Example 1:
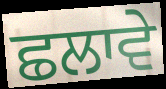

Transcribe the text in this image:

ਛਲਾਵੇ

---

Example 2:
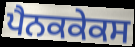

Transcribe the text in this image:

ਪੈਨਕਕੇਕਸ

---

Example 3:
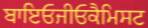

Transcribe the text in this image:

ਬਾਇਓਜੀਓਕੈਮਿਸਟ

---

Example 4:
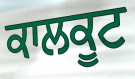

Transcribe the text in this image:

ਕਾਲਕੂਟ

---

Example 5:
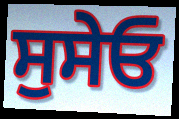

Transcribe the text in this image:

ਸੁਸੇਓ